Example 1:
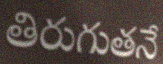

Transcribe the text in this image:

తిరుగుతనే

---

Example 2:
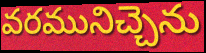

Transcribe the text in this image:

వరమునిచ్చెను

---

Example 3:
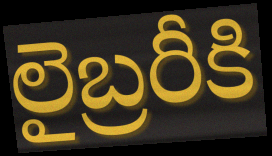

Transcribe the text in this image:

లైబ్రరీకి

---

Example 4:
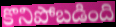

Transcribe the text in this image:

కొనిపోబడింది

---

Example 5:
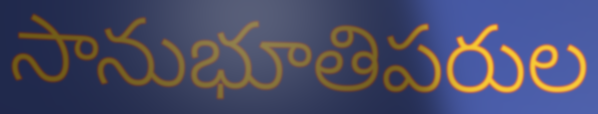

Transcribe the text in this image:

సానుభూతిపరుల